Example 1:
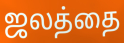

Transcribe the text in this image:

ஜலத்தை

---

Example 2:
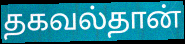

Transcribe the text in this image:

தகவல்தான்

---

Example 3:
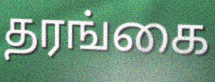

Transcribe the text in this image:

தரங்கை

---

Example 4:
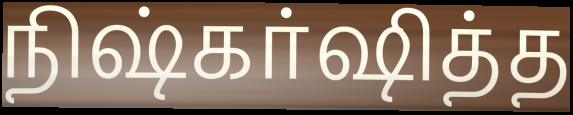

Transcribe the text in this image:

நிஷ்கர்ஷித்த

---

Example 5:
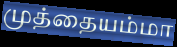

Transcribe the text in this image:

முத்தையம்மா